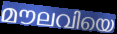
മൗലവിയെ